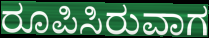
ರೂಪಿಸಿರುವಾಗ